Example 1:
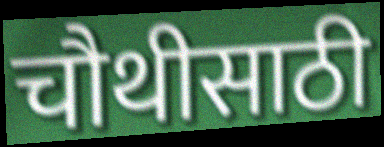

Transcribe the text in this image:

चौथीसाठी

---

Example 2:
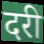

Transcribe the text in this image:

दरी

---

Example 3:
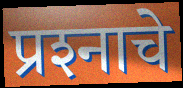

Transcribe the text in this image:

प्रश्‍नाचे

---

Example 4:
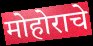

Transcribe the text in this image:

मोहोराचे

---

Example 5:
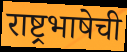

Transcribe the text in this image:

राष्ट्रभाषेची